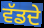
ਵੱਡਦੇ